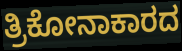
ತ್ರಿಕೋನಾಕಾರದ